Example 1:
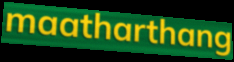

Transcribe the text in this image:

maatharthang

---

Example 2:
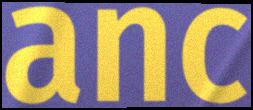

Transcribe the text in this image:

anc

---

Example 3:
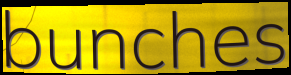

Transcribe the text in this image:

bunches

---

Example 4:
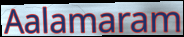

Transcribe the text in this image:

Aalamaram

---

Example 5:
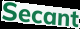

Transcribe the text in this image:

Secant